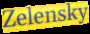
Zelensky